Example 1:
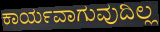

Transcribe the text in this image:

ಕಾರ್ಯವಾಗುವುದಿಲ್ಲ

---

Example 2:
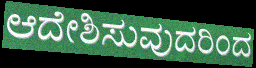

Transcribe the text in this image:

ಆದೇಶಿಸುವುದರಿಂದ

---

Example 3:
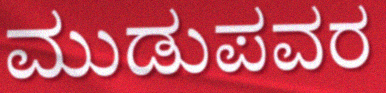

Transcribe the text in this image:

ಮುಡುಪವರ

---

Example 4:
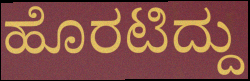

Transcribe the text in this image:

ಹೊರಟಿದ್ದು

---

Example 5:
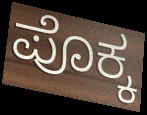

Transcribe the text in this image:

ಪೊಕ್ಕ